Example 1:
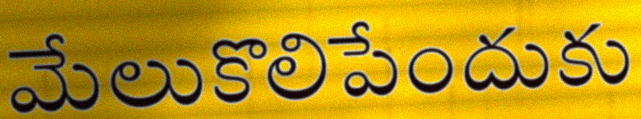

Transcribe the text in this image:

మేలుకొలిపేందుకు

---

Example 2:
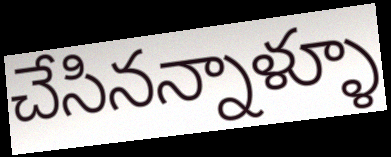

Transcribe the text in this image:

చేసినన్నాళ్ళూ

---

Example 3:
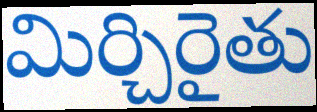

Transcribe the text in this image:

మిర్చిరైతు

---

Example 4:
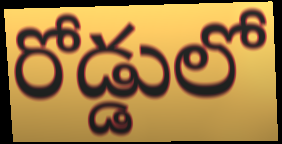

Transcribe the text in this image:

రోడ్డులో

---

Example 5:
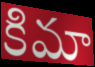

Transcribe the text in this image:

కిమా